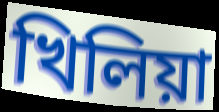
খিলিয়া